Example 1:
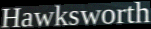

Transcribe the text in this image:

Hawksworth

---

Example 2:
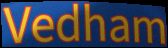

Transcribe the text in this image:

Vedham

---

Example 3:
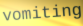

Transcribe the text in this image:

vomiting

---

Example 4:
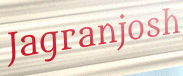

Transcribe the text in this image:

Jagranjosh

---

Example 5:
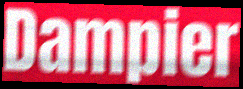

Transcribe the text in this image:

Dampier